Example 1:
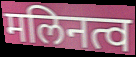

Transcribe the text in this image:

मलिनत्व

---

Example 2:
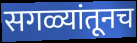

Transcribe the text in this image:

सगळ्यांतूनच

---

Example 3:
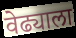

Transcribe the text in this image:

वेढ्याला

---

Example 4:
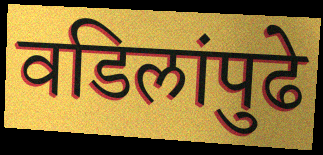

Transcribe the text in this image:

वडिलांपुढे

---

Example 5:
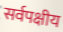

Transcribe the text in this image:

सर्वपक्षीय